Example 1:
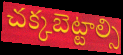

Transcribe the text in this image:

చక్కబెట్టాల్సి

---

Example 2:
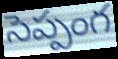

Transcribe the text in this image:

సెప్పంగ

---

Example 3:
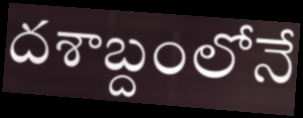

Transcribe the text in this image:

దశాబ్దంలోనే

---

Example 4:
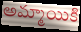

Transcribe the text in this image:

అమ్మాయికి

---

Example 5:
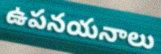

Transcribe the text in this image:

ఉపనయనాలు